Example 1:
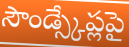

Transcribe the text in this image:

సౌండ్స్కేప్లపై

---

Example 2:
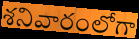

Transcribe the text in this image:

శనివారంలోగా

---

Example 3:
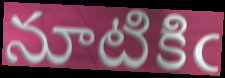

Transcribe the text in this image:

నూటికిఁ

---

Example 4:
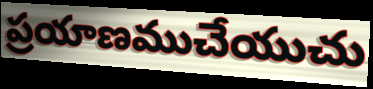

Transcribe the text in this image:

ప్రయాణముచేయుచు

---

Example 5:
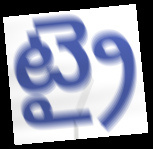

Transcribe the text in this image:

ట్రై